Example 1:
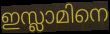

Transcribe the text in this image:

ഇസ്ലാമിനെ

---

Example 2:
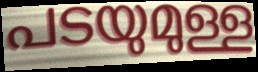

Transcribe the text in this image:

പടയുമുള്ള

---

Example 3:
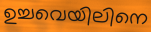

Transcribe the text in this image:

ഉച്ചവെയിലിനെ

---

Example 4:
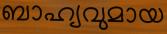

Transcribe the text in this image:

ബാഹ്യവുമായ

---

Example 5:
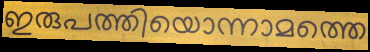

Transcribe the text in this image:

ഇരുപത്തിയൊന്നാമത്തെ